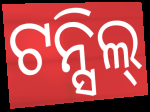
ଟନ୍ସିଲ୍